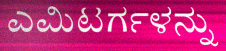
ಎಮಿಟರ್ಗಳನ್ನು